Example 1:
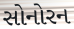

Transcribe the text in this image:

સોનોરન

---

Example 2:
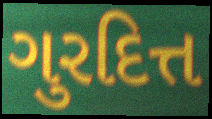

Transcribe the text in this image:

ગુરદિત્ત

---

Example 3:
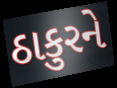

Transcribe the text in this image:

ઠાકુરને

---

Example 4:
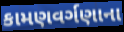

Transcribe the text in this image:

કામણવર્ગણાના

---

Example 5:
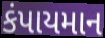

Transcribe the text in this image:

કંપાયમાન